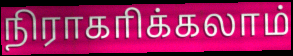
நிராகரிக்கலாம்